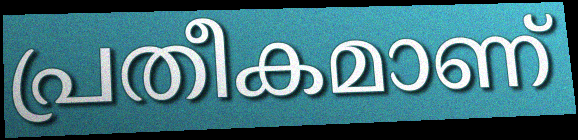
പ്രതീകമാണ്